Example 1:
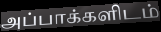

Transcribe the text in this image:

அப்பாக்களிடம்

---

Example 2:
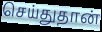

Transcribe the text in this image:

செய்துதான்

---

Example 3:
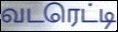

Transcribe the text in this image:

வடரெட்டி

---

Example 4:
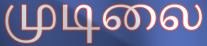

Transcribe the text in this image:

முடிலை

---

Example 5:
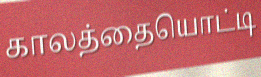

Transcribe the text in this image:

காலத்தையொட்டி